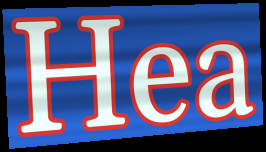
Hea